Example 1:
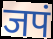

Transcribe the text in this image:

जपं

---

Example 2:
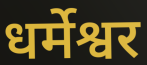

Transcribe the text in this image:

धर्मेश्वर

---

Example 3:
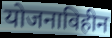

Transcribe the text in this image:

योजनाविहीन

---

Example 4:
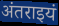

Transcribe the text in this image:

अंतराइयं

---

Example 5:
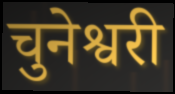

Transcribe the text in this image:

चुनेश्वरी